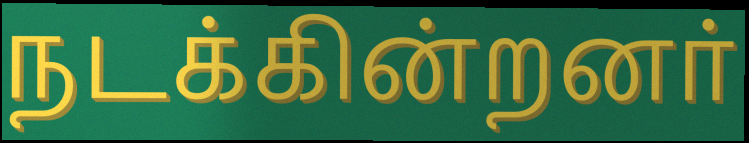
நடக்கின்றனர்